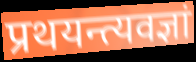
प्रथयन्त्यवज्ञां